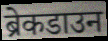
ब्रेकडाउन